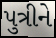
પુત્રીને